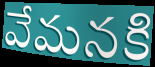
వేమనకి